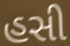
હસી